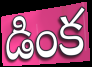
డింక